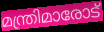
മന്ത്രിമാരോട്